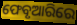
ଫେବୃଆରିରେ